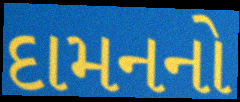
દામનનો